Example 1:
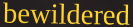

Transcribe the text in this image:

bewildered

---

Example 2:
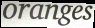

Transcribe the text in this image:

oranges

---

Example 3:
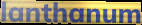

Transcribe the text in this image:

lanthanum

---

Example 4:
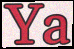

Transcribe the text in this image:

Ya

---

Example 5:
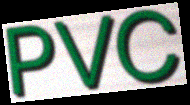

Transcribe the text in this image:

PVC